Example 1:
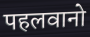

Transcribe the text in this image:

पहलवानो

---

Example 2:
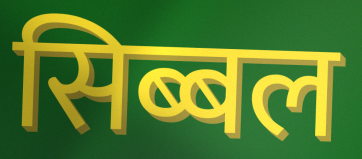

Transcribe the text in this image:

सिब्बल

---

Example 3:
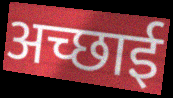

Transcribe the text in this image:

अच्छाई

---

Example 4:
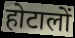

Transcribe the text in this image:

होटालों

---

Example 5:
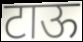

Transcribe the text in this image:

टाऊ